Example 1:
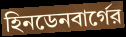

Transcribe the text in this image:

হিনডেনবার্গের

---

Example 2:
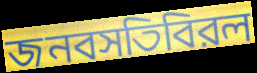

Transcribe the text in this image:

জনবসতিবিরল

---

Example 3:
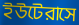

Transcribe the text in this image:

ইউটেরাসে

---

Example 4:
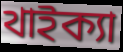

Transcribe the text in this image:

থাইক্যা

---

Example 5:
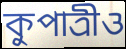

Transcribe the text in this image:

কুপাত্রীও